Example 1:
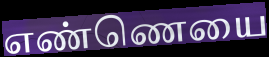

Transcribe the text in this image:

எண்ணெயை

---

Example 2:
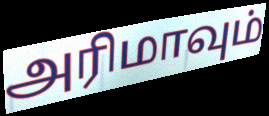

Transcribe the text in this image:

அரிமாவும்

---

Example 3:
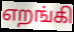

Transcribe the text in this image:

எறங்கி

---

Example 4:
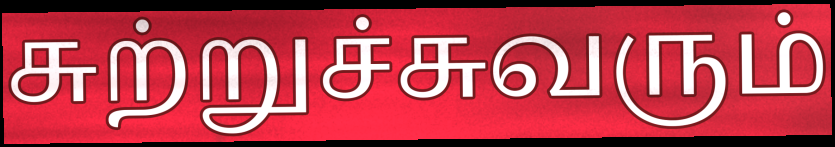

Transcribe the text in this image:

சுற்றுச்சுவரும்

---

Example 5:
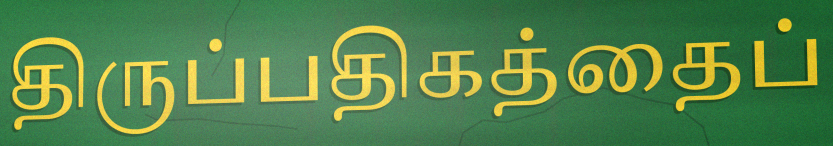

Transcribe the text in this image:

திருப்பதிகத்தைப்